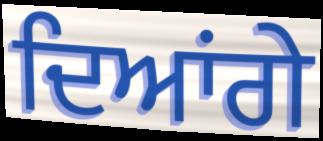
ਦਿਆਂਗੇ